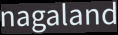
nagaland